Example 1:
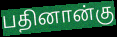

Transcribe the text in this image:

பதினான்கு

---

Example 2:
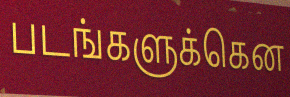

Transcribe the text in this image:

படங்களுக்கென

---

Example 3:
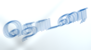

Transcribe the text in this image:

தொடரை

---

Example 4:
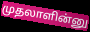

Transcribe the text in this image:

முதலாளின்னு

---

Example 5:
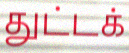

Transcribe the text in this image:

துட்டக்